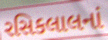
રસિકલાલનાં